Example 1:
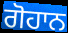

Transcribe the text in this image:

ਗੋਹਾਨ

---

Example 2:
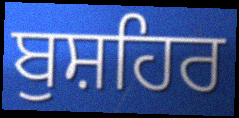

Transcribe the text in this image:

ਬੁਸ਼ਹਿਰ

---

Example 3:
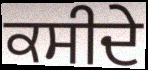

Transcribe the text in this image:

ਕਸੀਦੇ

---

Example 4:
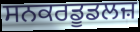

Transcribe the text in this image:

ਸਨਕਰਡੂਡਲਜ਼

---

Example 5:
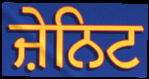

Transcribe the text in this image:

ਜ਼ੇਨਿਟ